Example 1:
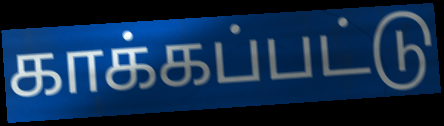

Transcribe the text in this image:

காக்கப்பட்டு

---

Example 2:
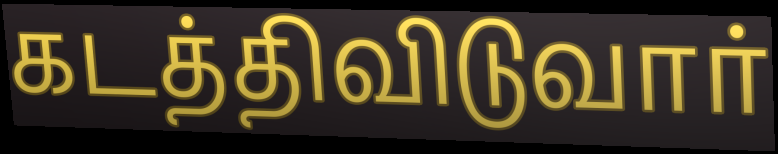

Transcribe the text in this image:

கடத்திவிடுவார்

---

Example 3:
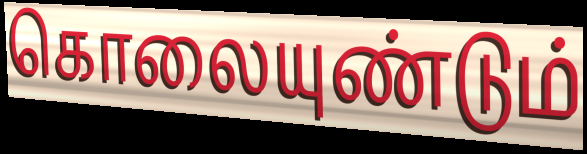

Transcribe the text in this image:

கொலையுண்டும்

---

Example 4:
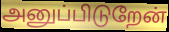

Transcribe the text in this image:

அனுப்பிடுறேன்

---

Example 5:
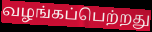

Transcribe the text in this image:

வழங்கப்பெற்றது